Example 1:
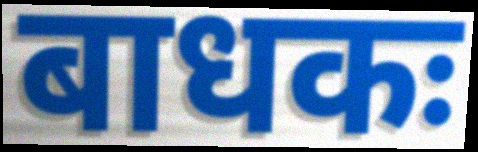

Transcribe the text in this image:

बाधकः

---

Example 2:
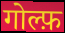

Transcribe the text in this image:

गोल्फ़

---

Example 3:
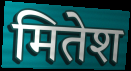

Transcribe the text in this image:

मितेश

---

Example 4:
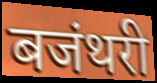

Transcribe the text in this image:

बजंथरी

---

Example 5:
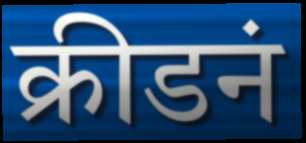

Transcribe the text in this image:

क्रीडनं